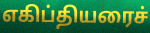
எகிப்தியரைச்